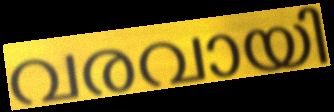
വരവായി